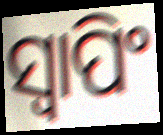
ସ୍ବାପିଂ